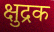
क्षुद्रक